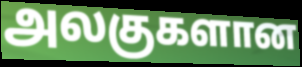
அலகுகளான